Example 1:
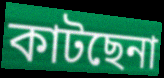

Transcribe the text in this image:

কাটছেনা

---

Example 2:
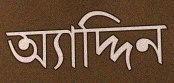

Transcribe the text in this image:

অ্যাদ্দিন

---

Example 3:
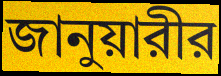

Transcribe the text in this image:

জানুয়ারীর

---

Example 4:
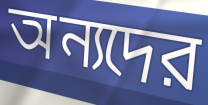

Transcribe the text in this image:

অন্যদের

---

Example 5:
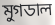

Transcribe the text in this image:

মুগডাল